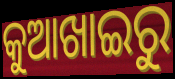
କୁଆଖାଇରୁ